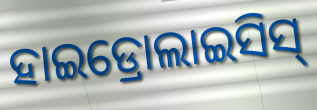
ହାଇଡ୍ରୋଲାଇସିସ୍